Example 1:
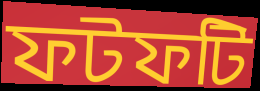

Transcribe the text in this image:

ফটফটি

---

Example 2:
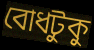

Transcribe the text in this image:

বোধটুকু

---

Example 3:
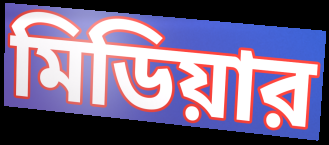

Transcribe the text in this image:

মিডিয়ার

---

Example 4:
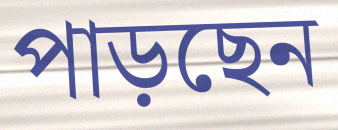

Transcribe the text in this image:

পাড়ছেন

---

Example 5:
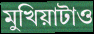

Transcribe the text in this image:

মুখিয়াটাও